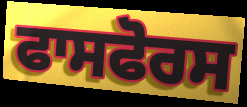
ਫਾਸਫੋਰਸ